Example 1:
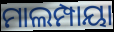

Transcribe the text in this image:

ମାଲମ୍ପାୟା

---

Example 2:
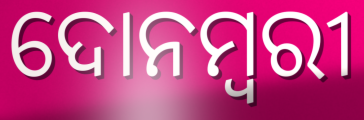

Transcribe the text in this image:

ଦୋନମ୍ବରୀ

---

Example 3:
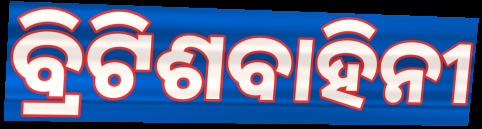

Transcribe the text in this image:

ବ୍ରିଟିଶବାହିନୀ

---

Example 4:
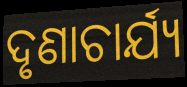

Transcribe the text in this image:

ଦୃଣାଚାର୍ଯ୍ୟ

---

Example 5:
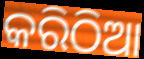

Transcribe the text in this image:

କରିଠିଆ